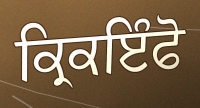
ਕ੍ਰਿਕਇੰਫੋ